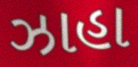
ઝાહા